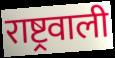
राष्ट्रवाली